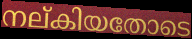
നല്കിയതോടെ